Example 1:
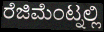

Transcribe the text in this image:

ರೆಜಿಮೆಂಟ್ನಲ್ಲಿ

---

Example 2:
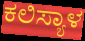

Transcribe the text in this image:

ಕಲಿಸ್ಯಾಳ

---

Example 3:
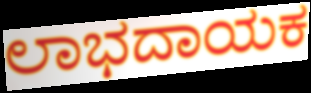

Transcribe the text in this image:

ಲಾಭದಾಯಕ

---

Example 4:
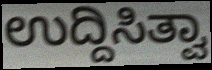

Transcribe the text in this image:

ಉದ್ದಿಸಿತ್ವಾ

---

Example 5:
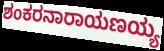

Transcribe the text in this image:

ಶಂಕರನಾರಾಯಣಯ್ಯ